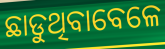
ଛାଡୁଥିବାବେଳେ